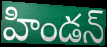
హిండన్